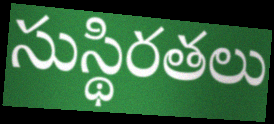
సుస్థిరతలు